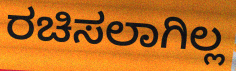
ರಚಿಸಲಾಗಿಲ್ಲ